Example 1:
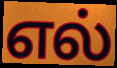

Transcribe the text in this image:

எல்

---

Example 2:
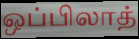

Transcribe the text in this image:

ஒப்பிலாத்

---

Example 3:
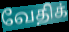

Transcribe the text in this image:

வேதிக்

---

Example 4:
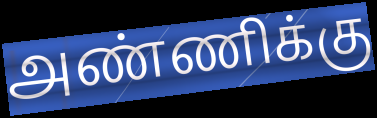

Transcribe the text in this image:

அண்ணிக்கு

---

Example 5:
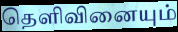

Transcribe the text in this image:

தெளிவினையும்